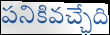
పనికివచ్చేది